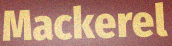
Mackerel